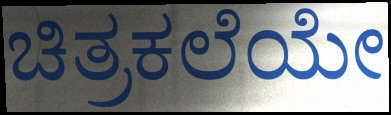
ಚಿತ್ರಕಲೆಯೇ